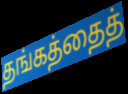
தங்கத்தைத்